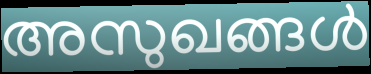
അസുഖങ്ങൾ